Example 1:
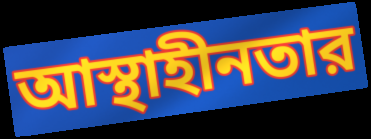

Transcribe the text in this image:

আস্থাহীনতার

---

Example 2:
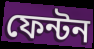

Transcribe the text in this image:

ফেন্টন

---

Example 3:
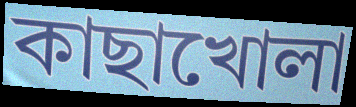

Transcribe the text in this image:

কাছাখোলা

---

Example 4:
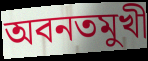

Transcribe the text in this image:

অবনতমুখী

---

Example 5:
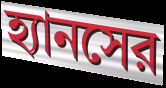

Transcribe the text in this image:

হ্যানসের